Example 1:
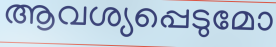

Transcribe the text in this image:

ആവശ്യപ്പെടുമോ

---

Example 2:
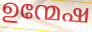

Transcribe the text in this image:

ഉന്മേഷ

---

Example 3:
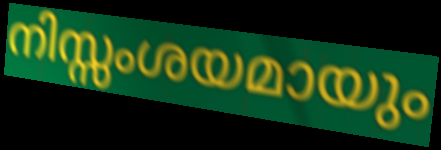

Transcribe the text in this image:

നിസ്സംശയമായും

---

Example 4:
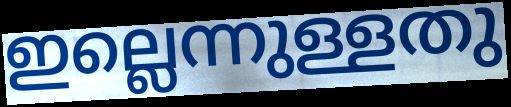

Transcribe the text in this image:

ഇല്ലെന്നുള്ളതു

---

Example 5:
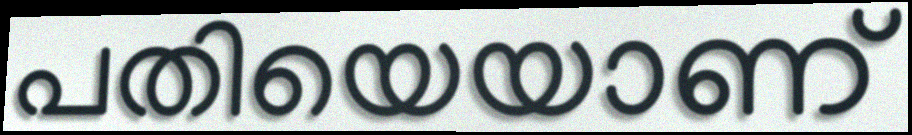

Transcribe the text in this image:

പതിയെയാണ്